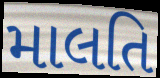
માલતિ